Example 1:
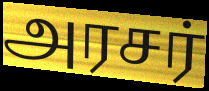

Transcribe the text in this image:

அரசர்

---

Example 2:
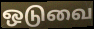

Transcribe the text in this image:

ஒடுவை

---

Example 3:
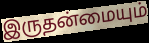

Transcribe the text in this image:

இருதன்மையும்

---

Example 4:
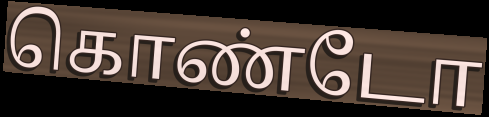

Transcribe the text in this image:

கொண்டோ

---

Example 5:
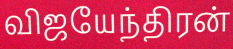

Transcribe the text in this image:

விஜயேந்திரன்